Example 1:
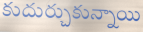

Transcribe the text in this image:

కుదుర్చుకున్నాయి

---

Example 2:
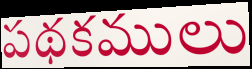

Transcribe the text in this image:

పథకములు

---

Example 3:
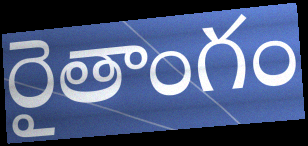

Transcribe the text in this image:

రైతాంగం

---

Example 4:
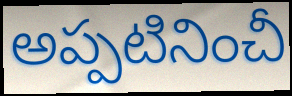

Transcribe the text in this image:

అప్పటినించీ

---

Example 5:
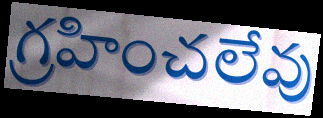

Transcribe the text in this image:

గ్రహించలేవు